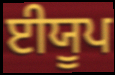
ਈਯੂਪ